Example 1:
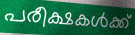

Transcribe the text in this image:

പരീക്ഷകൾക്ക്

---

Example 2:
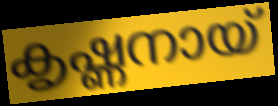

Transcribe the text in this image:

കൃഷ്ണനായ്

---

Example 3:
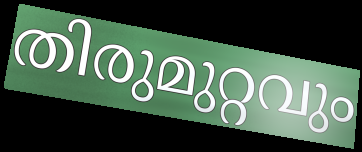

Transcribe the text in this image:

തിരുമുറ്റവും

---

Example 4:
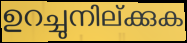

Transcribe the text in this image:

ഉറച്ചുനില്ക്കുക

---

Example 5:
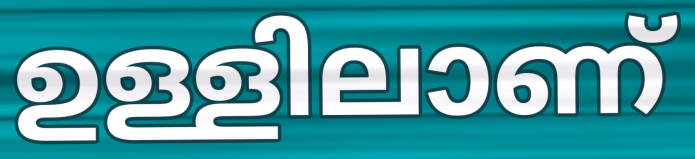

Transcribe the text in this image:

ഉള്ളിലാണ്